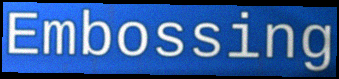
Embossing